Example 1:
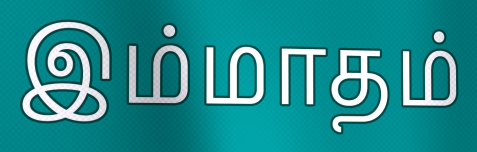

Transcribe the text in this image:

இம்மாதம்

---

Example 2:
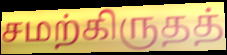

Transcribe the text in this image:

சமற்கிருதத்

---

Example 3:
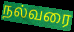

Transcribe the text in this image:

நல்வரை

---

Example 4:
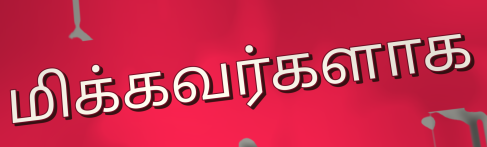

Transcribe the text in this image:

மிக்கவர்களாக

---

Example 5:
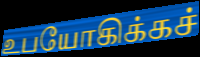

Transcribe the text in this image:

உபயோகிக்கச்